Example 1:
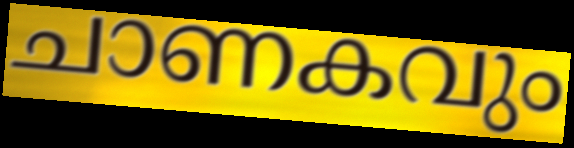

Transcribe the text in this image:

ചാണകവും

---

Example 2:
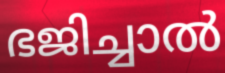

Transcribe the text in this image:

ഭജിച്ചാൽ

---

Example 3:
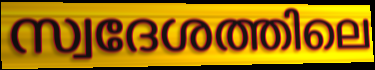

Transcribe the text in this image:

സ്വദേശത്തിലെ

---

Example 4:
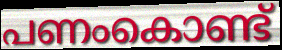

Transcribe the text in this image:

പണംകൊണ്ട്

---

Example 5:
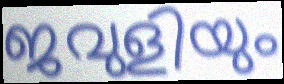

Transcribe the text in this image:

ജവുളിയും